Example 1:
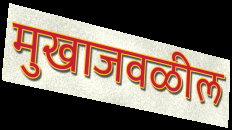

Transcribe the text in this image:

मुखाजवळील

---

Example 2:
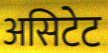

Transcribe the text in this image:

असिटेट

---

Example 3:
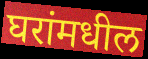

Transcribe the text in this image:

घरांमधील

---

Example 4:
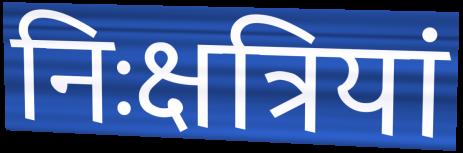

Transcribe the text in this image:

निःक्षत्रियां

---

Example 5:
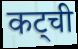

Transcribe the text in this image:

कट्ची